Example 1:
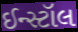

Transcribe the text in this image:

ઈન્સ્ટૉલ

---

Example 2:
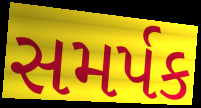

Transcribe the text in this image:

સમર્પક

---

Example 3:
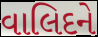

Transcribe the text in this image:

વાલિદને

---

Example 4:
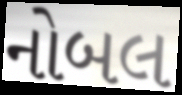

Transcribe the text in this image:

નોબલ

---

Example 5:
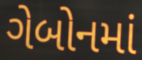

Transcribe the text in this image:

ગેબોનમાં